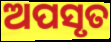
ଅପସୃତ